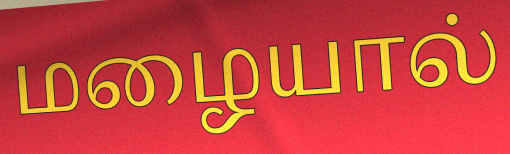
மழையால்